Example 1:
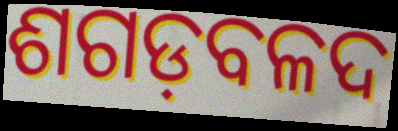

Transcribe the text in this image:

ଶଗଡ଼ବଳଦ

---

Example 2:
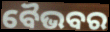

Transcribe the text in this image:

ବୈଭବର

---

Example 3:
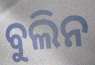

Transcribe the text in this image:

ବୁଲିନ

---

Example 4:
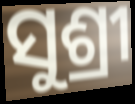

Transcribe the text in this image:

ସୁଶ୍ରୀ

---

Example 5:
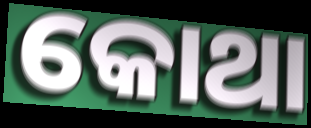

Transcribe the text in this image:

କୋଥା